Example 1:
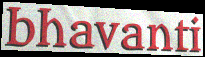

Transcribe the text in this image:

bhavanti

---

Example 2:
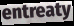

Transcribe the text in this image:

entreaty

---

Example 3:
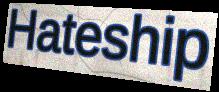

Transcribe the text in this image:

Hateship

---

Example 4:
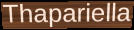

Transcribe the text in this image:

Thapariella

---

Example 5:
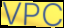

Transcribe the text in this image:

VPC